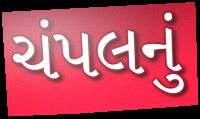
ચંપલનું